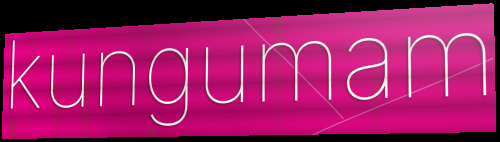
kungumam